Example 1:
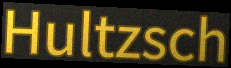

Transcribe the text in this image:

Hultzsch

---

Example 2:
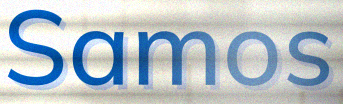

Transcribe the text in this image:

Samos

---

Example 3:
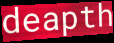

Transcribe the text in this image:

deapth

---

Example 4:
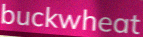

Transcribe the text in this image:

buckwheat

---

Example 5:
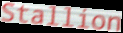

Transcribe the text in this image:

Stallion